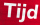
Tijd